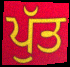
ਪੁੱਤ